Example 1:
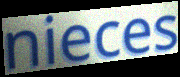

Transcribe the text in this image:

nieces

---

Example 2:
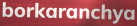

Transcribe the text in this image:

borkaranchya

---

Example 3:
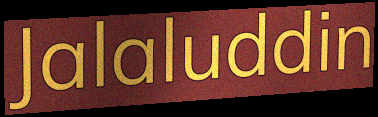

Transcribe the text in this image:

Jalaluddin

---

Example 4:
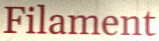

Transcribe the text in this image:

Filament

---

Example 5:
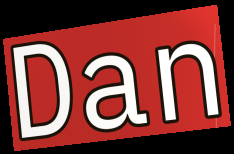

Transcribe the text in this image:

Dan